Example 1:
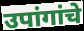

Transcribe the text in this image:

उपांगांचे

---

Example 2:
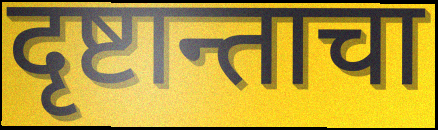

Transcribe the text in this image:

दृष्टान्ताचा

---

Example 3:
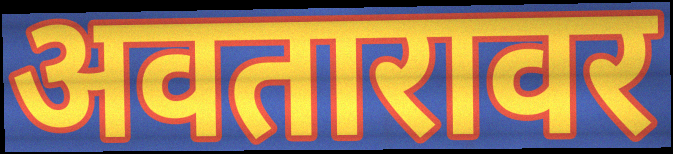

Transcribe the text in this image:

अवतारावर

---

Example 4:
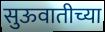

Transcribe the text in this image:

सुऊवातीच्या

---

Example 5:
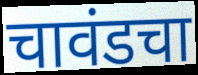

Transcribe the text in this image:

चावंडचा